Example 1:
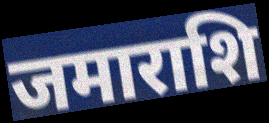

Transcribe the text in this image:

जमाराशि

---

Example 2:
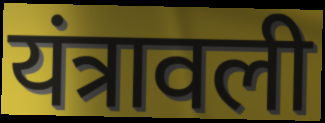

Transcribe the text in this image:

यंत्रावली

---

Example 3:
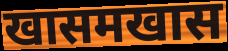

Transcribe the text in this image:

खासमखास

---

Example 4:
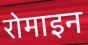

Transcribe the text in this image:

रोमाइन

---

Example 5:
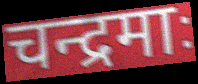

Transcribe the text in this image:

चन्द्रमाः